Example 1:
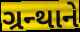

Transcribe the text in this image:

ગ્રન્થાને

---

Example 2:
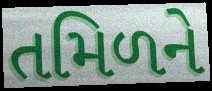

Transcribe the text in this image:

તમિળને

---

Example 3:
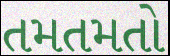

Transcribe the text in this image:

તમતમતો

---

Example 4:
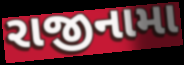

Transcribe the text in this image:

રાજીનામા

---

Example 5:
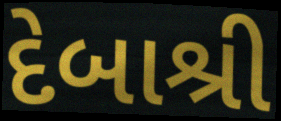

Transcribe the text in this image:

દેબાશ્રી